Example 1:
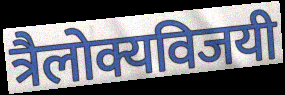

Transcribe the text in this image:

त्रैलोक्यविजयी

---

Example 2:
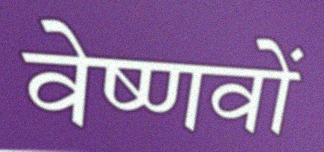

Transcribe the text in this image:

वेष्णवों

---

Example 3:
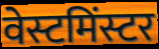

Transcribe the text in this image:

वेस्‍टमिंस्‍टर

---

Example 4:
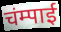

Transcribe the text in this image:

चंम्पाई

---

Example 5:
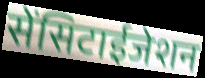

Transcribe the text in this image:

सेंसिटाईजेशन